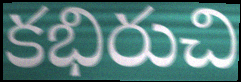
కభిరుచి